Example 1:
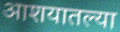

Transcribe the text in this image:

आशयातल्या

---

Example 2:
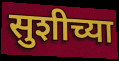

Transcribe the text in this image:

सुशीच्या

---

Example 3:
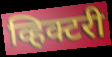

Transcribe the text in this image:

व्हिक्टरी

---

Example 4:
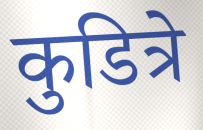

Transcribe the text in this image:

कुडित्रे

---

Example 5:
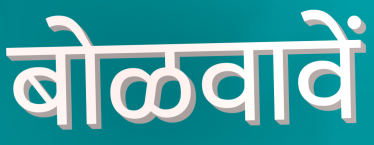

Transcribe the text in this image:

बोळवावें